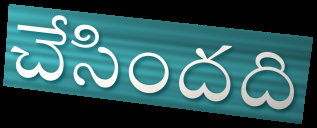
చేసిందది